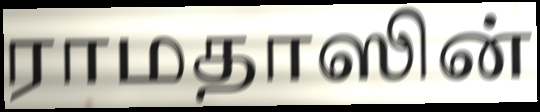
ராமதாஸின்